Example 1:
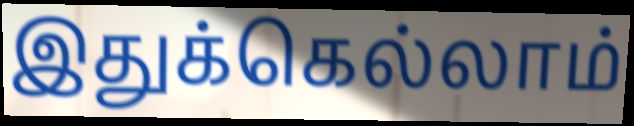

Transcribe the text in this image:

இதுக்கெல்லாம்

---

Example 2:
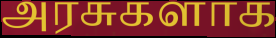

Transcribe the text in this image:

அரசுகளாக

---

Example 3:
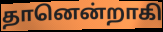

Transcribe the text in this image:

தானென்றாகி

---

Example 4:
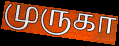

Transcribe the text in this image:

முருகா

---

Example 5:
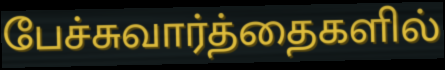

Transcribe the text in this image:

பேச்சுவார்த்தைகளில்